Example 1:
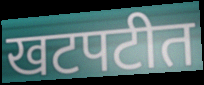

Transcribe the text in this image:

खटपटीत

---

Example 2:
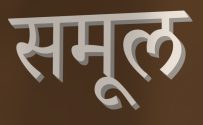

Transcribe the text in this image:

समूल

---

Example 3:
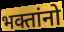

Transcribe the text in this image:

भक्तांनो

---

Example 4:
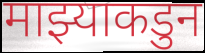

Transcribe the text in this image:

माझ्याकडुन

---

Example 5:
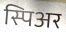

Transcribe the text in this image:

स्पिअर